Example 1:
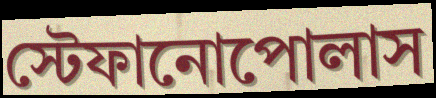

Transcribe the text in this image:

স্টেফানোপোলাস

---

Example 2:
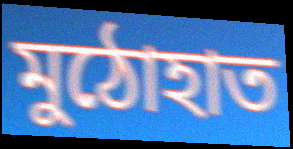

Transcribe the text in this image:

মুঠোহাত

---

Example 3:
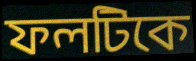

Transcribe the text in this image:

ফলটিকে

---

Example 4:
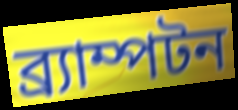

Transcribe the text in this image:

ব্র্যাম্পটন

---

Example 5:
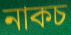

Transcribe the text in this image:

নাকচ